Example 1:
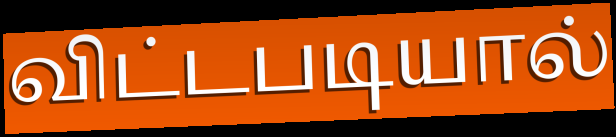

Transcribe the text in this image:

விட்டபடியால்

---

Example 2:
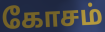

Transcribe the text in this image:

கோசம்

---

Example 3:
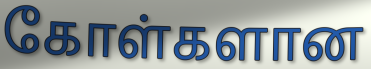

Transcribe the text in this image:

கோள்களான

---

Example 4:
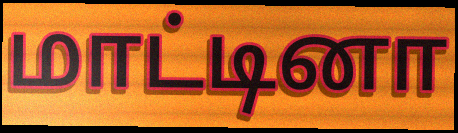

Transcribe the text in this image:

மாட்டினா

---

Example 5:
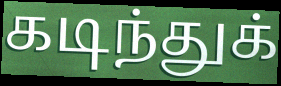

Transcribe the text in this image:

கடிந்துக்